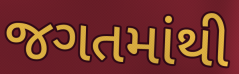
જગતમાંથી